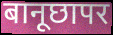
बानूछापर